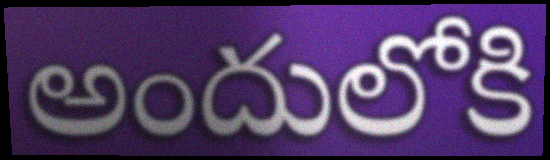
అందులోకి